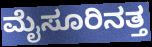
ಮೈಸೂರಿನತ್ತ